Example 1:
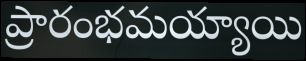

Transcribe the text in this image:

ప్రారంభమయ్యాయి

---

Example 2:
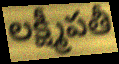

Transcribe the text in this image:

లక్ష్మీపతీ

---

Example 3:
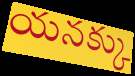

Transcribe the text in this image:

యనక్కు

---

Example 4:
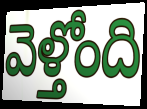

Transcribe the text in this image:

వెళ్తోంది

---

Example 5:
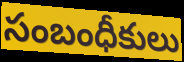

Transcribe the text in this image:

సంబంధీకులు